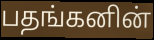
பதங்கனின்